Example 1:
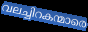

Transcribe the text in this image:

വലച്ചിറകന്മാരെ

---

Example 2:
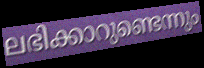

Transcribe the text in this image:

ലഭിക്കാറുണ്ടെന്നും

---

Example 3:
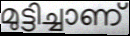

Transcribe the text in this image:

മുട്ടിച്ചാണ്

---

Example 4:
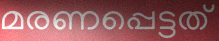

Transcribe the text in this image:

മരണപ്പെട്ടത്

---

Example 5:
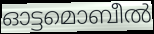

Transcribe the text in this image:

ഓട്ടമൊബീൽ